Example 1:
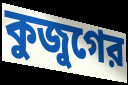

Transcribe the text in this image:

কুজুগের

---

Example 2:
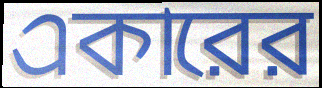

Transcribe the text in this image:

একারের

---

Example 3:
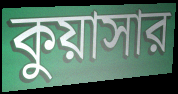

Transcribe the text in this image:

কুয়াসার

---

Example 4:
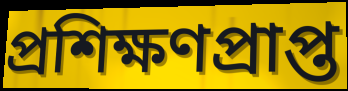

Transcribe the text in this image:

প্রশিক্ষণপ্রাপ্ত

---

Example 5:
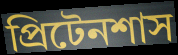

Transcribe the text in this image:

প্রিটেনশাস